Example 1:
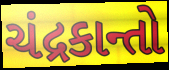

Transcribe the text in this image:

ચંદ્રકાન્તો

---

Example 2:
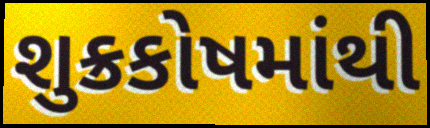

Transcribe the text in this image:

શુક્રકોષમાંથી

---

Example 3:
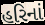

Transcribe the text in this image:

હરિનાં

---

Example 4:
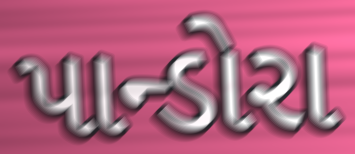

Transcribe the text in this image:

પાન્ડોરા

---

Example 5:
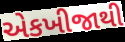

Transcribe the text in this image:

એકખીજાથી